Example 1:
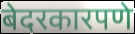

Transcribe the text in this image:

बेदरकारपणे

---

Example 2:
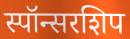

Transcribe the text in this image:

स्पॉन्सरशिप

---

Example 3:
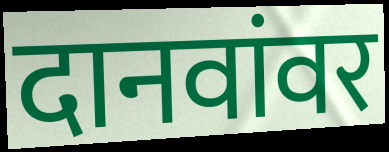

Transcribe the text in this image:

दानवांवर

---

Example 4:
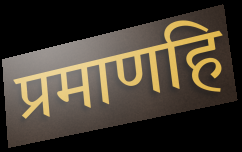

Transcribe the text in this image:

प्रमाणहि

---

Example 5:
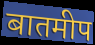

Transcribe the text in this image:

बातमीप